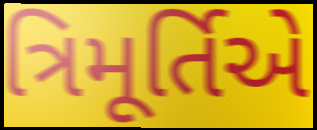
ત્રિમૂર્તિએ